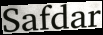
Safdar